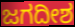
ಜಗದೀಶ